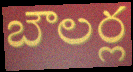
బౌలర్ల